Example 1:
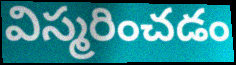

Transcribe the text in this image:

విస్మరించడం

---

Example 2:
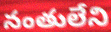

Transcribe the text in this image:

నంతులేని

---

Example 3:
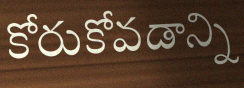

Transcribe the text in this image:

కోరుకోవడాన్ని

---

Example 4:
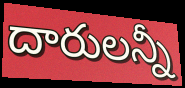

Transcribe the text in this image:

దారులన్నీ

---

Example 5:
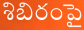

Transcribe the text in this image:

శిబిరంపై